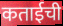
कताईची